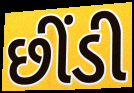
છીંડી